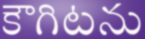
కౌగిటను